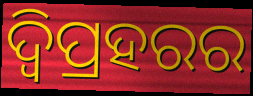
ଦ୍ୱିପ୍ରହରର